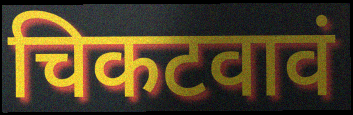
चिकटवावं